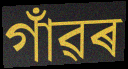
গাঁৱৰ